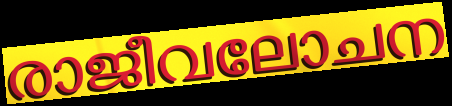
രാജീവലോചന